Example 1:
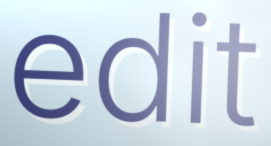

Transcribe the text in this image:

edit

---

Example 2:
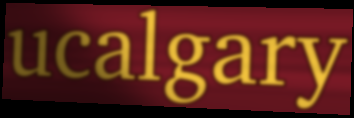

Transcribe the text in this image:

ucalgary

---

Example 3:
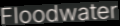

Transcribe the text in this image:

Floodwater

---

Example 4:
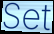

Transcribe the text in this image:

Set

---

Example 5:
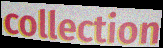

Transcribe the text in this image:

collection